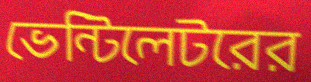
ভেন্টিলেটরের